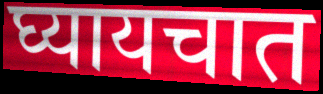
घ्यायचात